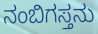
ನಂಬಿಗಸ್ತನು